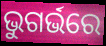
ଭୁଗର୍ଭରେ